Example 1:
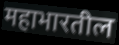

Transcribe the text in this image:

महाभारतील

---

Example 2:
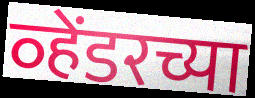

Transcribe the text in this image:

व्हेंडरच्या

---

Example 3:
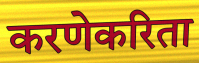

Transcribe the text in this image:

करणेकरिता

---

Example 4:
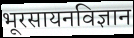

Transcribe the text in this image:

भूरसायनविज्ञान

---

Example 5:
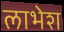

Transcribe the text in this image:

लाभेश